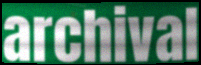
archival